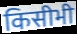
किसीभी